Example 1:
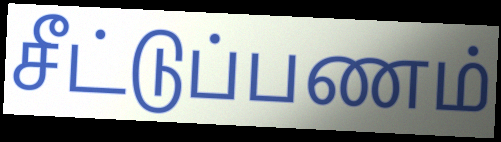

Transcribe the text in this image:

சீட்டுப்பணம்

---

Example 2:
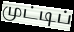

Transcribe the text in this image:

முட்டிப்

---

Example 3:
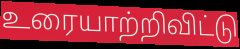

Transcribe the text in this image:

உரையாற்றிவிட்டு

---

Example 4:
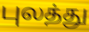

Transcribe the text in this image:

புலத்து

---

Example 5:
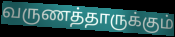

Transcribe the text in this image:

வருணத்தாருக்கும்